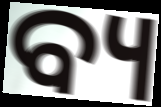
ବ୍ୟ